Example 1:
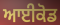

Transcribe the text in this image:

ਆਈਕੋਡ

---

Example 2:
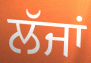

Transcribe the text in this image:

ਲੱਜਾਂ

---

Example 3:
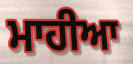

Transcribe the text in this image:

ਮਾਹੀਆ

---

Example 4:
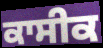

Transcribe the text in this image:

ਕਾਸੀਕ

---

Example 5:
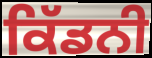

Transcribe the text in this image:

ਕਿੱਡਨੀ